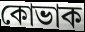
কোভাক